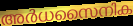
അർധസൈനിക